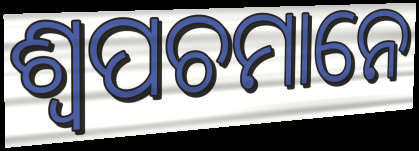
ଶ୍ୱପଚମାନେ